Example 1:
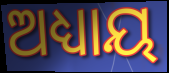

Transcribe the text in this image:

ଅଧ୍ୟାୟ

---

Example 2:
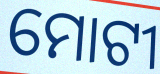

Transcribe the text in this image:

ମୋଟୀ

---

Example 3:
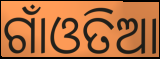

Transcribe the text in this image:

ଗାଁଓତିଆ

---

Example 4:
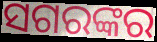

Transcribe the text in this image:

ସଗରଙ୍କର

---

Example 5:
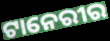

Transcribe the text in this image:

ଟାନେରୀର